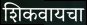
शिकवायचा